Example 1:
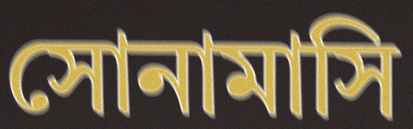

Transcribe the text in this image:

সোনামাসি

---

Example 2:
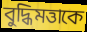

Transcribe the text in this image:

বুদ্ধিমত্তাকে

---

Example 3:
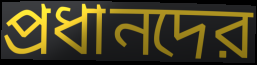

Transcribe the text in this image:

প্রধানদের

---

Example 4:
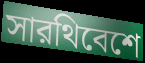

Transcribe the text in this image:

সারথিবেশে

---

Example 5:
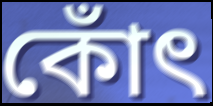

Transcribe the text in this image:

কোঁৎ